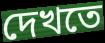
দেখতে